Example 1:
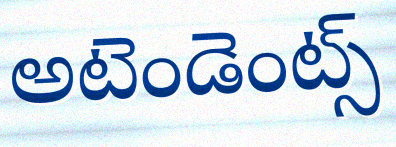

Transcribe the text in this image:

అటెండెంట్స్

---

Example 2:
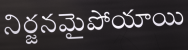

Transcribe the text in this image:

నిర్జనమైపోయాయి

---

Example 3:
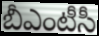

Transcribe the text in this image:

బీఎంటీసీ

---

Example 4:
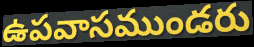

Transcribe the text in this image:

ఉపవాసముండరు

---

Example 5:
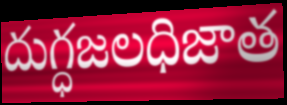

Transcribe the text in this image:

దుగ్ధజలధిజాత